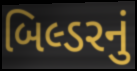
બિલ્ડરનું